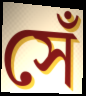
সেঁ